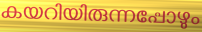
കയറിയിരുന്നപ്പോഴും